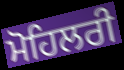
ਮੋਹਿਲਰੀ